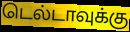
டெல்டாவுக்கு